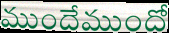
ముందేముందో